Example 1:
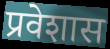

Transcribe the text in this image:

प्रवेशास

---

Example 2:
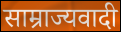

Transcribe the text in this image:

साम्राज्यवादी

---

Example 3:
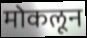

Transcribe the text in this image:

मोकलून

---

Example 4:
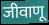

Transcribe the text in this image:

जीवाणू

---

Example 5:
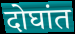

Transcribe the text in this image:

दोघांत